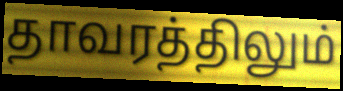
தாவரத்திலும்